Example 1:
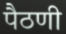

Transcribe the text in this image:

पैठणी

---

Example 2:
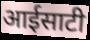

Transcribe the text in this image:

आईसाटी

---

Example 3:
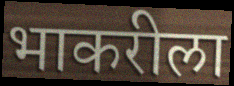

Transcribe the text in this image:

भाकरीला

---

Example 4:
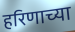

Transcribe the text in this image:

हरिणाच्या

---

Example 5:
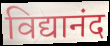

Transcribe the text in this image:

विद्यानंद